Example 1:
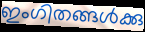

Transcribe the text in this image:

ഇംഗിതങ്ങൾക്കു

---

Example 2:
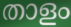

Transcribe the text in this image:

താളം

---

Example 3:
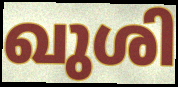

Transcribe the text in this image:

ഖുശി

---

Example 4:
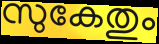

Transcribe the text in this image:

സുകേതും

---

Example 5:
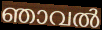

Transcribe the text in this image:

ഞാവൽ